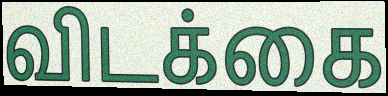
விடக்கை